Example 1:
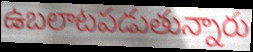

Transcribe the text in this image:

ఉబలాటపడుతున్నారు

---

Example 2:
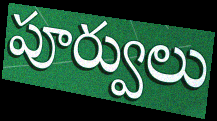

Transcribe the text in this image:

పూర్వులు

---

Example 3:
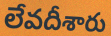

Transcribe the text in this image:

లేవదీశారు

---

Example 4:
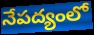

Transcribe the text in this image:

నేపద్యంలో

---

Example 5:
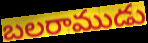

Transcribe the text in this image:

బలరాముడు